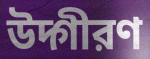
উদ্গীরণ